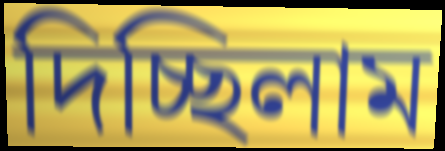
দিচ্ছিলাম